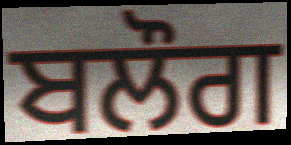
ਬਲੌਗ